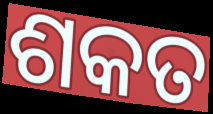
ଶକତ